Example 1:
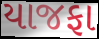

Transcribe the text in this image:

યાજફા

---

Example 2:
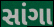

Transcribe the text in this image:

સાંગા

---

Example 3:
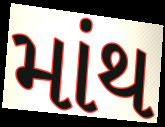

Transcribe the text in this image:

માંથ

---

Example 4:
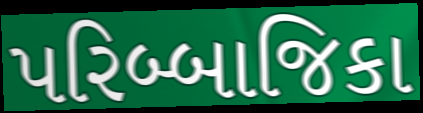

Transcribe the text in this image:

પરિબ્બાજિકા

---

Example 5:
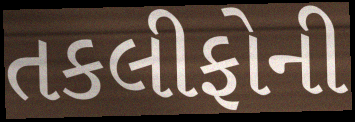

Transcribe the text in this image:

તકલીફોની